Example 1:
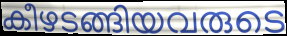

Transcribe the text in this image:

കീഴടങ്ങിയവരുടെ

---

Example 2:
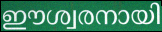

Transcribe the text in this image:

ഈശ്വരനായി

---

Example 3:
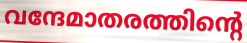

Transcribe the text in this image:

വന്ദേമാതരത്തിന്റെ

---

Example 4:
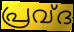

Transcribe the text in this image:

പ്രവ്ദ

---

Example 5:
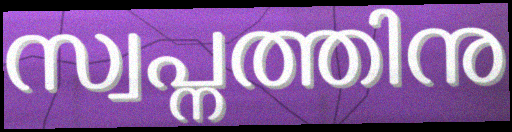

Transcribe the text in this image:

സ്വപ്നത്തിനു